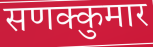
सणक्कुमार